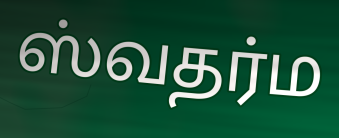
ஸ்வதர்ம